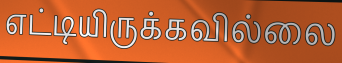
எட்டியிருக்கவில்லை